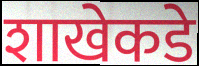
शाखेकडे